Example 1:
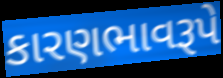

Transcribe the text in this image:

કારણભાવરૂપે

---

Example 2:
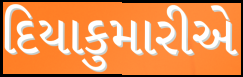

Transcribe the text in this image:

દિયાકુમારીએ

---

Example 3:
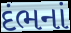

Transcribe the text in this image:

દંભનાં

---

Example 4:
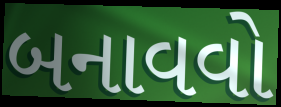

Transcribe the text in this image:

બનાવવો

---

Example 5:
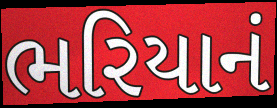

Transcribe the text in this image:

ભરિયાનં